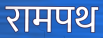
रामपथ